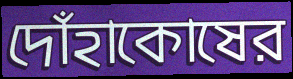
দোঁহাকোষের